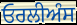
ਓਰਲੀਅੰਸ